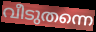
വീടുതന്നെ